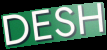
DESH